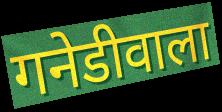
गनेडीवाला